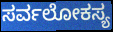
ಸರ್ವಲೋಕಸ್ಯ